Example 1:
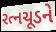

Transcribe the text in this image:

રત્નચૂડને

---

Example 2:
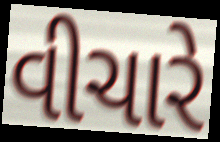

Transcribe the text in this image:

વીચારે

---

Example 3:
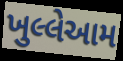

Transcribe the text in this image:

ખુલ્લેઆમ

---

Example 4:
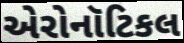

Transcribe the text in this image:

એરોનૉટિકલ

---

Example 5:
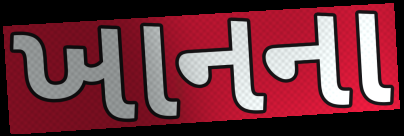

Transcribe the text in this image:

ખાનના